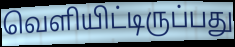
வெளியிட்டிருப்பது